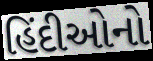
હિંદીઓનો